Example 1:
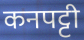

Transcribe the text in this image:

कनपट्टी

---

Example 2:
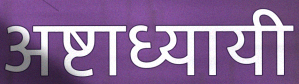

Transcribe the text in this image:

अष्टाध्यायी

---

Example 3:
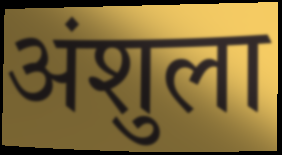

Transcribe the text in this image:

अंशुला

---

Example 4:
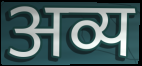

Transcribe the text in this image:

अव्य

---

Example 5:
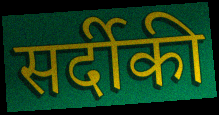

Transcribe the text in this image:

सर्दीकी